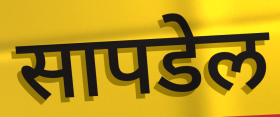
सापडेल